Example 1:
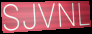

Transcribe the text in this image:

SJVNL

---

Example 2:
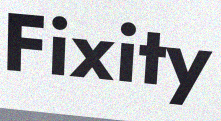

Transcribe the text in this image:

Fixity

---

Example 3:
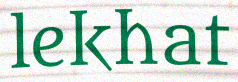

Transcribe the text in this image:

lekhat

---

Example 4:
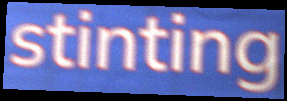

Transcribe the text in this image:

stinting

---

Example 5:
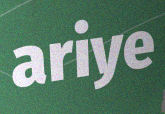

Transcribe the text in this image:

ariye